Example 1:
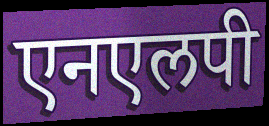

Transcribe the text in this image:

एनएलपी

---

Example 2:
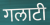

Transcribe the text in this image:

गलाटी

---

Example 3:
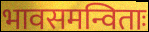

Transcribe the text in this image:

भावसमन्विताः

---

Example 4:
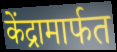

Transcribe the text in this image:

केंद्रामार्फत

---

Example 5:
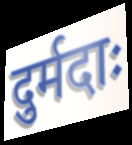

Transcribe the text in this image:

दुर्मदाः